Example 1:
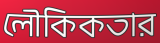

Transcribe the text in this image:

লৌকিকতার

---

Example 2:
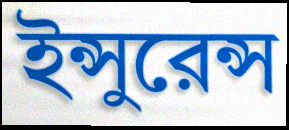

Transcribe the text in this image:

ইন্সুরেন্স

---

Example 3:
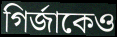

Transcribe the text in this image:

গির্জাকেও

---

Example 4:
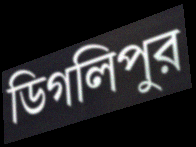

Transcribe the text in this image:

ডিগলিপুর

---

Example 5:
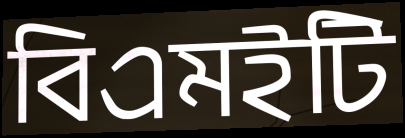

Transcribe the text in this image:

বিএমইটি